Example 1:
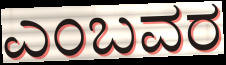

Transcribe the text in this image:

ಎಂಬವರ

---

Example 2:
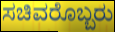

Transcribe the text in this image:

ಸಚಿವರೊಬ್ಬರು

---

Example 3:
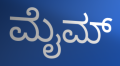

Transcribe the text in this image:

ಮೈಮ್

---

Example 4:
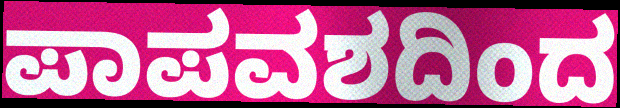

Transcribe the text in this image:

ಪಾಪವಶದಿಂದ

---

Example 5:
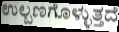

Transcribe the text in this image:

ಉಲ್ಬಣಗೊಳ್ಳುತ್ತದೆ